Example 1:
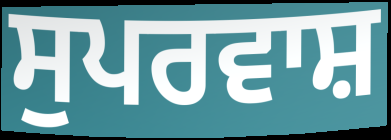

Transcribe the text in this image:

ਸੁਪਰਵਾਸ਼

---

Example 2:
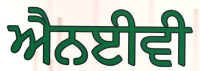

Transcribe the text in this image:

ਐਨਈਵੀ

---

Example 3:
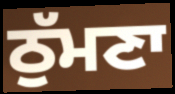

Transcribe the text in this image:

ਠੁੱਮਣਾ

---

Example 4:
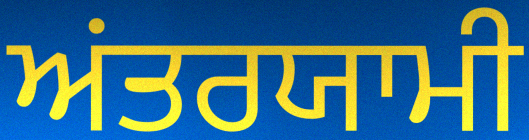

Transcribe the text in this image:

ਅਂਤਰਯਾਮੀ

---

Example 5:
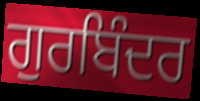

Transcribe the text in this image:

ਗੁਰਬਿੰਦਰ